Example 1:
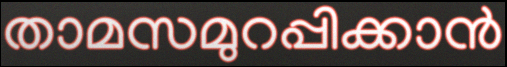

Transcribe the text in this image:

താമസമുറപ്പിക്കാൻ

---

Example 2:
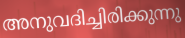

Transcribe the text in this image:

അനുവദിച്ചിരിക്കുന്നു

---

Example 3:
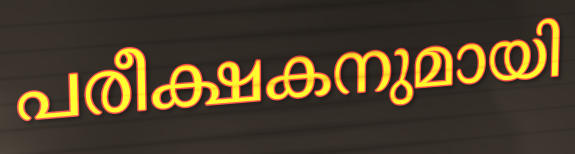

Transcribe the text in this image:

പരീക്ഷകനുമായി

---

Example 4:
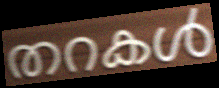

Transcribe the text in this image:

തറകൾ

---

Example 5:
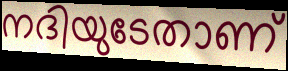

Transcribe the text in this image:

നദിയുടേതാണ്